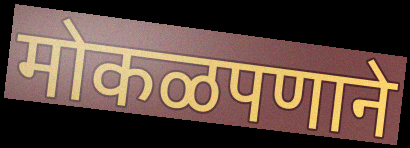
मोकळपणाने